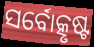
ସର୍ବୋତ୍କୃଷ୍ଟ